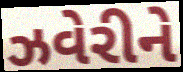
ઝવેરીને